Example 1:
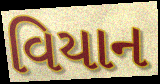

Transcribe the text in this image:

વિયાન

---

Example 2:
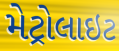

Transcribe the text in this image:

મેટ્રોલાઇટ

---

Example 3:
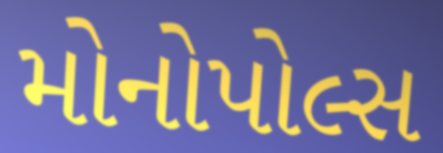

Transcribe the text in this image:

મોનોપોલ્સ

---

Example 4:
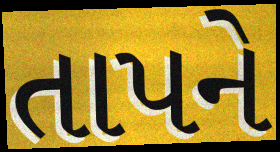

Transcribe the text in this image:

તાપને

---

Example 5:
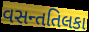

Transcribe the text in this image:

વસન્તતિલકા